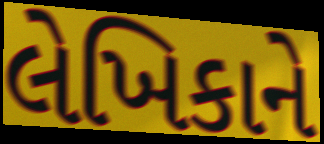
લેખિકાને